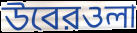
উবেরওলা